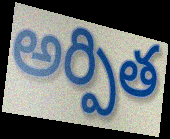
అర్పిత